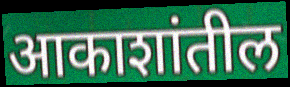
आकाशांतील